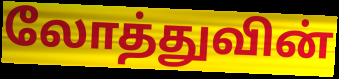
லோத்துவின்